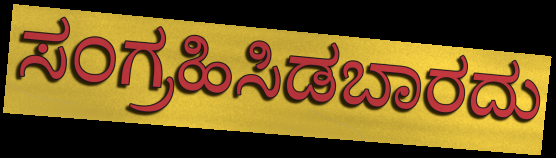
ಸಂಗ್ರಹಿಸಿಡಬಾರದು